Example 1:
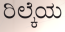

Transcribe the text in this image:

ರಿಲ್ಕೆಯ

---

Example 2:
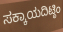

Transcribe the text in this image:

ಸಕ್ಕಾಯದಿಟ್ಠಿಂ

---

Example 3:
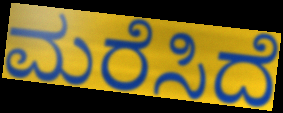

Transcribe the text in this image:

ಮರೆಸಿದೆ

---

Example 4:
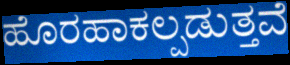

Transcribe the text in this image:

ಹೊರಹಾಕಲ್ಪಡುತ್ತವೆ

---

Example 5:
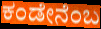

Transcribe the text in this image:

ಕಂಡೇನೆಂಬ